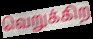
வெறுக்கிற